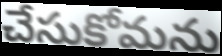
చేసుకోమను